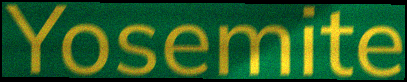
Yosemite